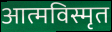
आत्मविस्मृत